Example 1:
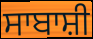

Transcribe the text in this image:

ਸਾਬਾਸ਼ੀ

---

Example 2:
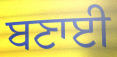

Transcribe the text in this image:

ਬਣਾਈ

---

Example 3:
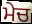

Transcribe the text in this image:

ਮੇਚ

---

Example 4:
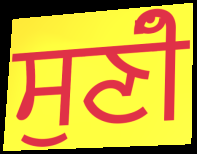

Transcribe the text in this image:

ਸੁਣੀਁ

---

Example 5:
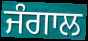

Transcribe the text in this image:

ਜੰਗਾਲ